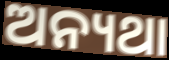
ଅନ୍ୟଥା